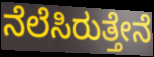
ನೆಲೆಸಿರುತ್ತೇನೆ